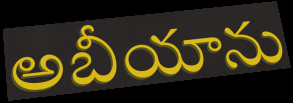
అబీయాను